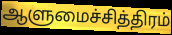
ஆளுமைச்சித்திரம்